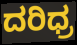
ದರಿಧ್ರ